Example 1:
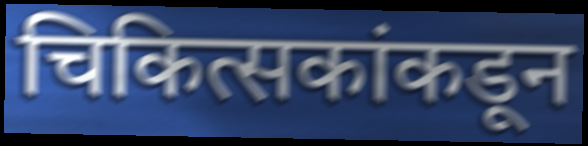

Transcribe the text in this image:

चिकित्सकांकडून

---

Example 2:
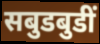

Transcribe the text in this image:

सबुडबुडीं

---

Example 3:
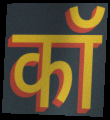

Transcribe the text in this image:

कॉ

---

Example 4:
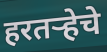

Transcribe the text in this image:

हरतऱ्हेचे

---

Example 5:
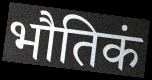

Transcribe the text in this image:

भौतिकं